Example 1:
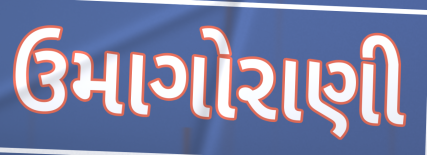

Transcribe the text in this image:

ઉમાગોરાણી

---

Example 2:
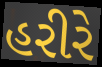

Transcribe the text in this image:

હરીરે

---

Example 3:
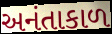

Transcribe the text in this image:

અનંતાકાળ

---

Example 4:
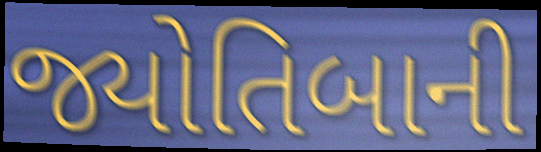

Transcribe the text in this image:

જ્યોતિબાની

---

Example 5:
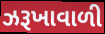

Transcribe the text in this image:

ઝરૂખાવાળી